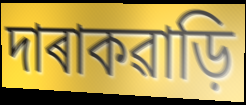
দাৰাকৱাড়ি